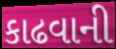
કાઢવાની